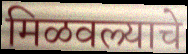
मिळवल्याचे